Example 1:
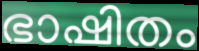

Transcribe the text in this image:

ഭാഷിതം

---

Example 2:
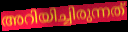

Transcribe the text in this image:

അറിയിച്ചിരുന്നത്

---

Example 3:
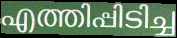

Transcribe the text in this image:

എത്തിപ്പിടിച്ച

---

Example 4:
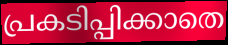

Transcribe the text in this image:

പ്രകടിപ്പിക്കാതെ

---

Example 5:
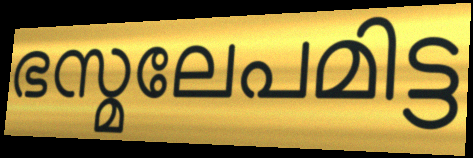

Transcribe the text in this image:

ഭസ്മലേപമിട്ട